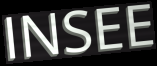
INSEE